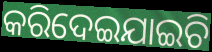
କରିଦେଇଯାଇଚି